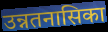
उन्नतनासिका